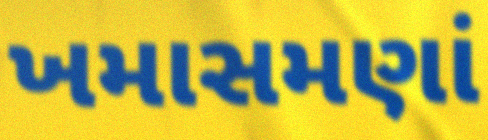
ખમાસમણાં